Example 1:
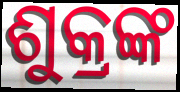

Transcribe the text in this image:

ଶୁକ୍ରଙ୍କ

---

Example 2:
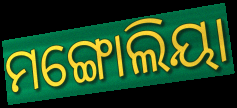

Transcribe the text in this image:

ମଙ୍ଗୋଲିୟା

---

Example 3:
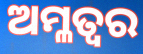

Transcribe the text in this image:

ଅମ୍ଳତ୍ଵର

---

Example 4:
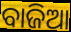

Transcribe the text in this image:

ବାଜିଆ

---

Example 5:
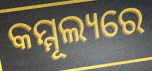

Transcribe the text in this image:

କମ୍ମୂଲ୍ୟରେ